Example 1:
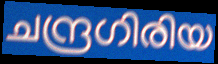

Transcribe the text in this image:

ചന്ദ്രഗിരിയ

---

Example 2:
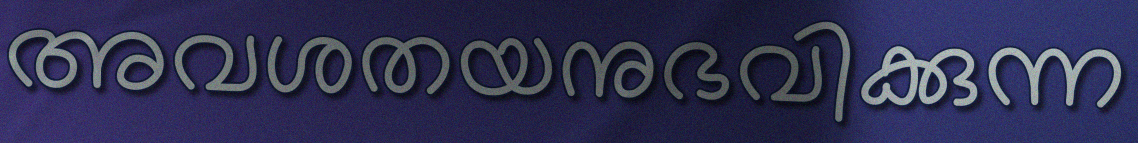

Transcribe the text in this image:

അവശതയനുഭവിക്കുന്ന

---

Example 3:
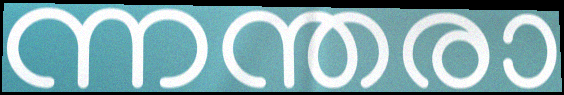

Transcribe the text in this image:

ന്നന്തരാ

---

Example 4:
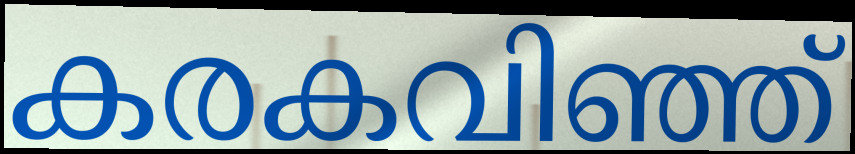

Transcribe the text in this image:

കരകവിഞ്ഞ്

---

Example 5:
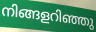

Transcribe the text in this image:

നിങ്ങളറിഞ്ഞു